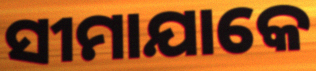
ସୀମାଯାକେ